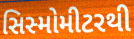
સિસ્મોમીટરથી